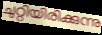
ചുറ്റിയിരിക്കുന്നു